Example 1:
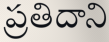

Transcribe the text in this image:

ప్రతిదాని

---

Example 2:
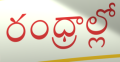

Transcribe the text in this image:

రంధ్రాల్లో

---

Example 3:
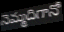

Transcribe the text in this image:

నెమ్మదిగానో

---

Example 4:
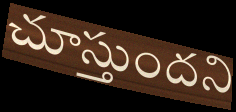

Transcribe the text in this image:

చూస్తుందని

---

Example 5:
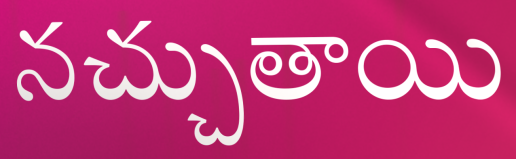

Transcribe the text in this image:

నచ్చుతాయి